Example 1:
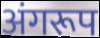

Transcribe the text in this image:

अंगरूप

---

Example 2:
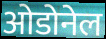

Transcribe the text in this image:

ओडोनेल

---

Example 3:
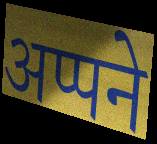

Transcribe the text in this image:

अप्पने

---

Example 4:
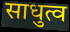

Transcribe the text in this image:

साधुत्व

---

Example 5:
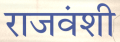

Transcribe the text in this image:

राजवंशी